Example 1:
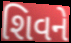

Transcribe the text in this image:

શિવને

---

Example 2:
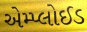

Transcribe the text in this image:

એમ્પ્લોઈડ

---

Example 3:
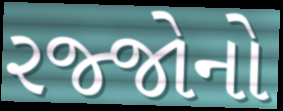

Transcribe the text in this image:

રજ્જોનો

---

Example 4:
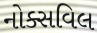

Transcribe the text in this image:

નોક્સવિલ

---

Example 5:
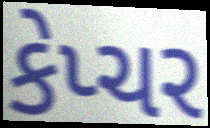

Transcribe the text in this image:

કેપ્ચર